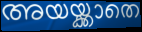
അയയ്ക്കാതെ